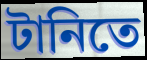
টানিতে